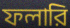
ফলারি